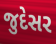
જુદેસર